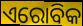
ଏରୋବିକ